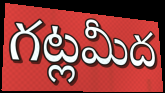
గట్లమీద